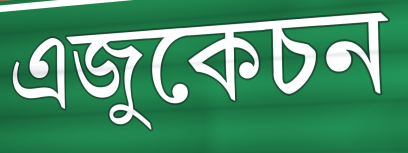
এজুকেচন